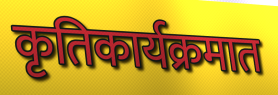
कृतिकार्यक्रमात